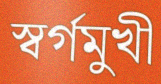
স্বর্গমুখী